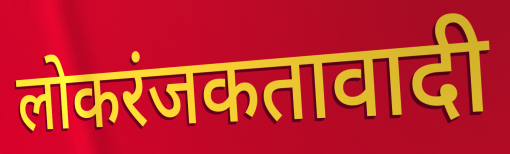
लोकरंजकतावादी